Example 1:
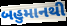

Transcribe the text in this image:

બહુમાનથી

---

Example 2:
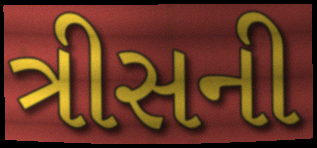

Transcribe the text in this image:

ત્રીસની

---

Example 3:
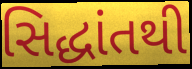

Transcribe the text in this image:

સિદ્ધાંતથી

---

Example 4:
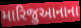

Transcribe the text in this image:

મારિજુઆનાના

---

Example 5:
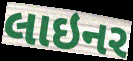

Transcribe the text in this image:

લાઇનર